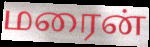
மரைன்